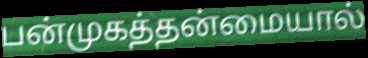
பன்முகத்தன்மையால்